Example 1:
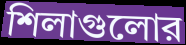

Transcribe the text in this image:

শিলাগুলোর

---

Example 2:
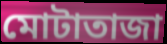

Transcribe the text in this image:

মোটাতাজা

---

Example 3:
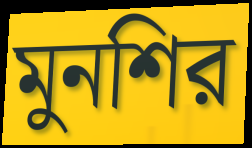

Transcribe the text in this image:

মুনশির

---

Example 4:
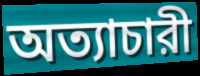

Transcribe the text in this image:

অত্যাচারী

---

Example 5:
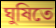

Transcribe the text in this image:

ঘুষিতে